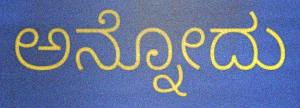
ಅನ್ನೋದು